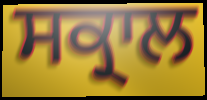
ਸਕ੍ਰਾਲ